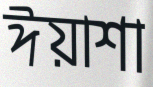
ঈয়াশা